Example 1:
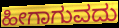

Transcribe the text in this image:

ಹೀಗಾಗುವದು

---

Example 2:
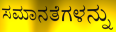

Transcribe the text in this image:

ಸಮಾನತೆಗಳನ್ನು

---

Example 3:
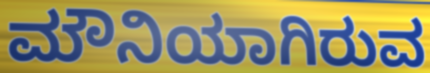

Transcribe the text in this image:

ಮೌನಿಯಾಗಿರುವ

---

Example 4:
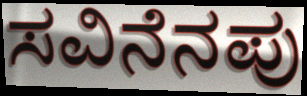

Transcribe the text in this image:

ಸವಿನೆನಪು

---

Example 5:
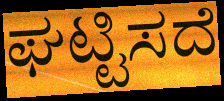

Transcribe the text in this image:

ಘಟ್ಟಿಸದೆ